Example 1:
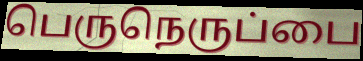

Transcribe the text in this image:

பெருநெருப்பை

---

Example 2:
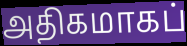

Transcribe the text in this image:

அதிகமாகப்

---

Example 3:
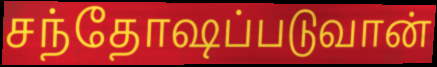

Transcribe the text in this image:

சந்தோஷப்படுவான்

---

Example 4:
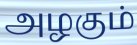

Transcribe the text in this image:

அழகும்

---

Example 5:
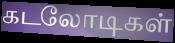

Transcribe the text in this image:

கடலோடிகள்